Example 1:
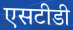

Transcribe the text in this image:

एसटीडी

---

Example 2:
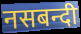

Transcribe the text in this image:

नसबन्दी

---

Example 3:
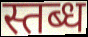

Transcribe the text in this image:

स्तब्ध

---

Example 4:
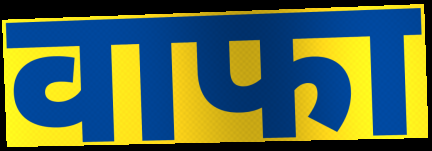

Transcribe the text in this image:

वाफा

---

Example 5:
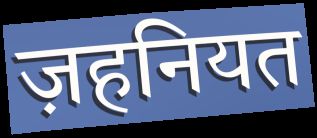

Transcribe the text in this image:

ज़हनियत